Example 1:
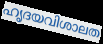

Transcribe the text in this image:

ഹൃദയവിശാലത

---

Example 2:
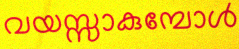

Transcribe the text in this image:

വയസ്സാകുമ്പോൾ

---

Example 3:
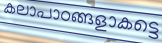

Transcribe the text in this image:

കലാപാഠങ്ങളാകട്ടെ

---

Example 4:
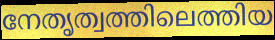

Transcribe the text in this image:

നേതൃത്വത്തിലെത്തിയ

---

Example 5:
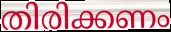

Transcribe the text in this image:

തിരിക്കണം